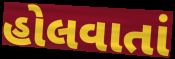
હોલવાતાં